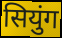
सियुंग